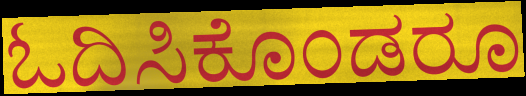
ಓದಿಸಿಕೊಂಡರೂ